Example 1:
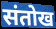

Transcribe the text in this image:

संतोख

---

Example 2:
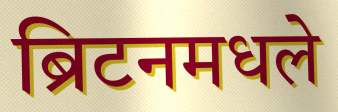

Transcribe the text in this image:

ब्रिटनमधले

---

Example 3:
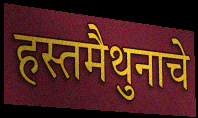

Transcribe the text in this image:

हस्तमैथुनाचे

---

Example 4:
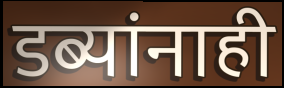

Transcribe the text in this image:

डब्यांनाही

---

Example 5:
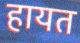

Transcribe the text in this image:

हायत